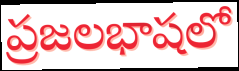
ప్రజలభాషలో